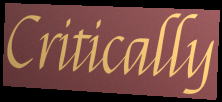
Critically